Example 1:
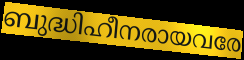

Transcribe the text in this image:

ബുദ്ധിഹീനരായവരേ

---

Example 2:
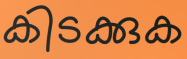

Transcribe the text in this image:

കിടക്കുക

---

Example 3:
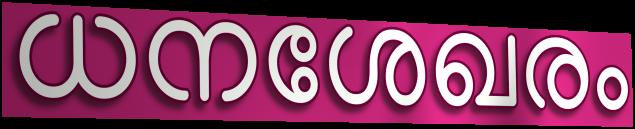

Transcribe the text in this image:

ധനശേഖരം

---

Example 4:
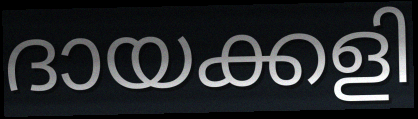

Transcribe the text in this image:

ദായക്കളി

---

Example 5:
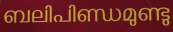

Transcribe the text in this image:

ബലിപിണ്ഡമുണ്ടു